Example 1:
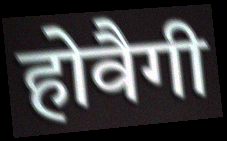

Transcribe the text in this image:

होवैगी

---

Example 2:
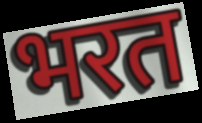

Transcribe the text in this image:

भरत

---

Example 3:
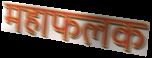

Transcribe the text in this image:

महाफलक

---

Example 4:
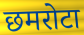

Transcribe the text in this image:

छमरोटा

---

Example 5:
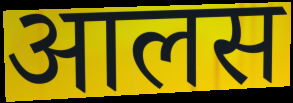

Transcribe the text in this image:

आलस